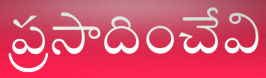
ప్రసాదించేవి